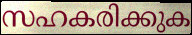
സഹകരിക്കുക